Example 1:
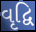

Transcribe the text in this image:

વૃદ્વિ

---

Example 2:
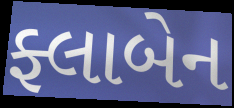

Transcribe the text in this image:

ફ્લાબેન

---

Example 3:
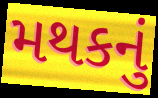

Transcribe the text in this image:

મથકનું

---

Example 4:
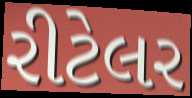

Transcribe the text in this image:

રીટેલર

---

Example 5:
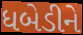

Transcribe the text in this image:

ધબેડીને